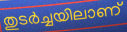
തുടർച്ചയിലാണ്